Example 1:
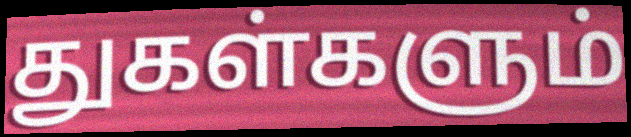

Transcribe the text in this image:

துகள்களும்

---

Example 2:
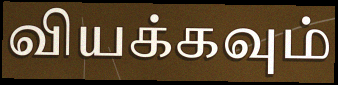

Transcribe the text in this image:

வியக்கவும்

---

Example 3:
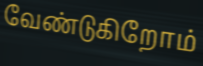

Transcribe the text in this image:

வேண்டுகிறோம்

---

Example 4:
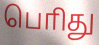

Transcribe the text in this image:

பெரிது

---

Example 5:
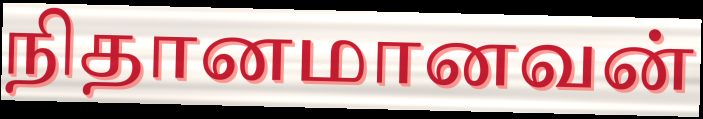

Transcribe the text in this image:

நிதானமானவன்